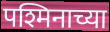
पश्मिनाच्या